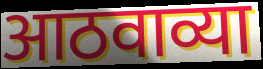
आठवाव्या